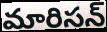
మారిసన్